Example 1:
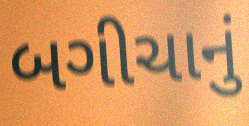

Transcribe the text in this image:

બગીચાનું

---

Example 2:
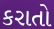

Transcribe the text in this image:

કરાતો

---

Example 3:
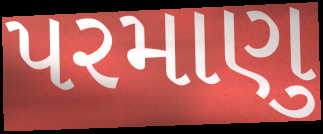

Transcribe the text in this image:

પરમાણુ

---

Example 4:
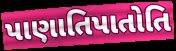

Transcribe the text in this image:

પાણાતિપાતોતિ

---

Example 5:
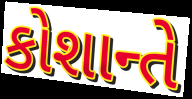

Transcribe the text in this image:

કોશાન્તે